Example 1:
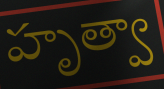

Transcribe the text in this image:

హృత్వా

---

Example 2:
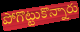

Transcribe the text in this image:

పోగొట్టుకొన్నారు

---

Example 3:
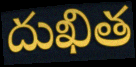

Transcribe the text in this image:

దుఖిత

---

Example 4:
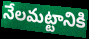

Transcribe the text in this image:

నేలమట్టానికి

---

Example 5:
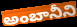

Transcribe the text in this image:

అంబానీని